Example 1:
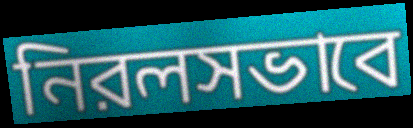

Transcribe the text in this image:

নিরলসভাবে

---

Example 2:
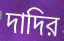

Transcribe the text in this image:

দাদির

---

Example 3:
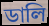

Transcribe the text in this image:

ডালি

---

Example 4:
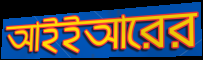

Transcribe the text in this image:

আইইআরের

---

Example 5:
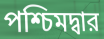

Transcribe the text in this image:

পশ্চিমদ্বার